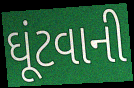
ઘૂંટવાની